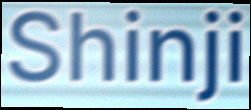
Shinji